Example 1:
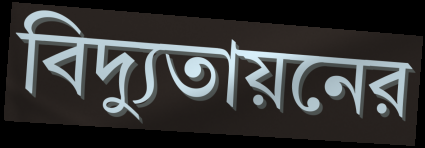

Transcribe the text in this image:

বিদ্যুতায়নের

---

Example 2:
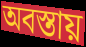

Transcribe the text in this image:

অবস্তায়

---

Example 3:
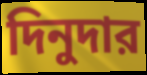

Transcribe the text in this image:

দিনুদার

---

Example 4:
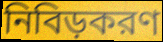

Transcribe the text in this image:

নিবিড়করণ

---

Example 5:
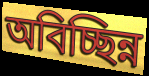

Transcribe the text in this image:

অবিচ্ছিন্ন